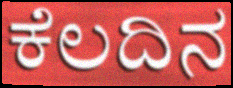
ಕೆಲದಿನ